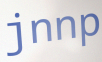
jnnp